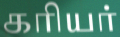
கரியர்